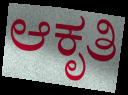
ಆಕೃತಿ